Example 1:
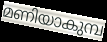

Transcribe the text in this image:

മണിയാകുമ്പ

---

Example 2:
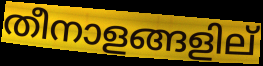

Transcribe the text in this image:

തീനാളങ്ങളില്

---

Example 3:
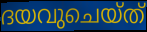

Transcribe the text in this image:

ദയവുചെയ്ത്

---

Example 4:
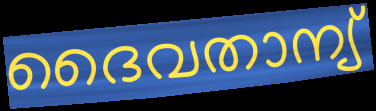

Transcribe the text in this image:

ദൈവതാന്യ്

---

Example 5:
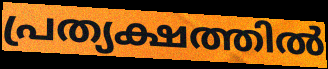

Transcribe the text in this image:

പ്രത്യക്ഷത്തിൽ